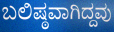
ಬಲಿಷ್ಠವಾಗಿದ್ದವು